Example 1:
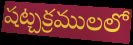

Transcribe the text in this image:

షట్చక్రములలో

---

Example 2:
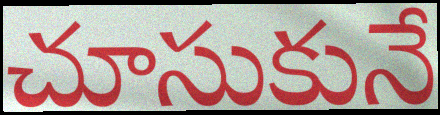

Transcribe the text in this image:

చూసుకునే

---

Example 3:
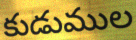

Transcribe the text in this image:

కుడుముల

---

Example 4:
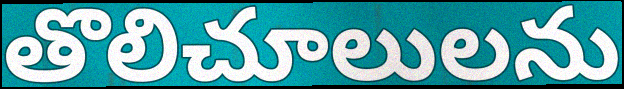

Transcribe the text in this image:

తొలిచూలులను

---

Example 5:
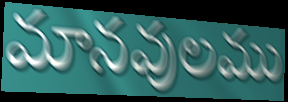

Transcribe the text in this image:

మానవులము